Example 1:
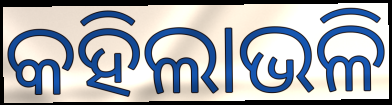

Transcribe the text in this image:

କହିଲାଭଳି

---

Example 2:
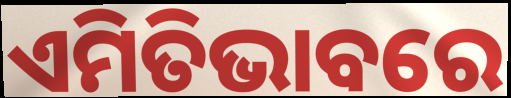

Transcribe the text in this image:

ଏମିତିଭାବରେ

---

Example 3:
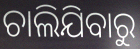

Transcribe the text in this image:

ଚାଲିଯିବାରୁ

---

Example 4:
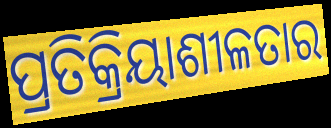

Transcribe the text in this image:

ପ୍ରତିକ୍ରିୟାଶୀଳତାର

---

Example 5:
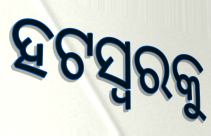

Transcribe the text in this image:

ହଟସ୍ଵରକୁ